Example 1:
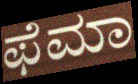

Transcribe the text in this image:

ಫೆಮಾ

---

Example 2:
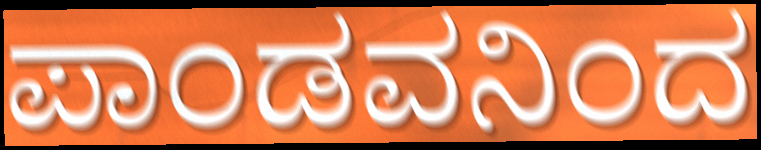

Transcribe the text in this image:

ಪಾಂಡವನಿಂದ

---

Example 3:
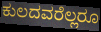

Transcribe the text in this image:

ಕುಲದವರೆಲ್ಲರೂ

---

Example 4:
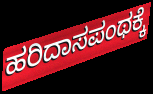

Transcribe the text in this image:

ಹರಿದಾಸಪಂಥಕ್ಕೆ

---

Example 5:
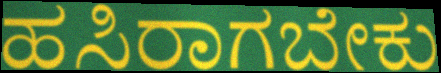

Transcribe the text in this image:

ಹಸಿರಾಗಬೇಕು